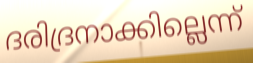
ദരിദ്രനാക്കില്ലെന്ന്